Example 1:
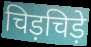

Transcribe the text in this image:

चिड़चिड़े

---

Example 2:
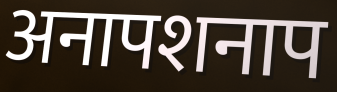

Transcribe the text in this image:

अनापशनाप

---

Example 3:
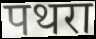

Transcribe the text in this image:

पथरा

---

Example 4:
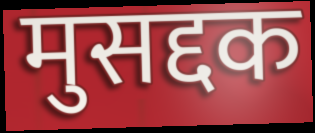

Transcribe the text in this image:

मुसद्दक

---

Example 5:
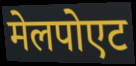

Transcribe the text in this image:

मेलपोएट